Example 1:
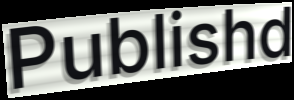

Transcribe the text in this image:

Publishd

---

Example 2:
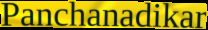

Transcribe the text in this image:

Panchanadikar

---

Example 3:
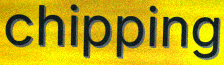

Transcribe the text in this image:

chipping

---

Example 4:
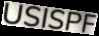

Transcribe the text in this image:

USISPF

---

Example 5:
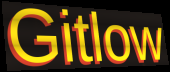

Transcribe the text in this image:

Gitlow